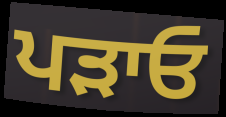
ਪੜਾਓ